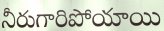
నీరుగారిపోయాయి